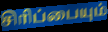
சிரிப்பையும்